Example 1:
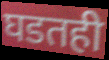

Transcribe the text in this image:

घडतही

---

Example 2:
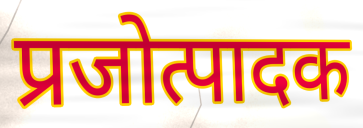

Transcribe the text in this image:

प्रजोत्पादक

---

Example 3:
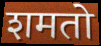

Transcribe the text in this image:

शमतो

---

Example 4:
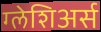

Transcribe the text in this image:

ग्लेशिअर्स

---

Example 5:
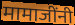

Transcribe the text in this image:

मामाजींनी